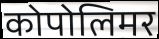
कोपोलिमर